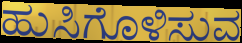
ಹುಸಿಗೊಳಿಸುವ